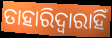
ତାହାରିଦ୍ୱାରାହିଁ